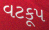
વટકૂપ